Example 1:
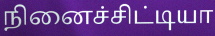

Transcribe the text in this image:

நினைச்சிட்டியா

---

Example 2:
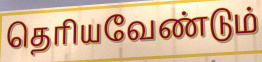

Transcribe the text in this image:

தெரியவேண்டும்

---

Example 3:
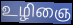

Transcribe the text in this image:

உழிஞை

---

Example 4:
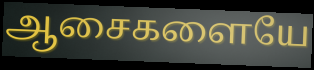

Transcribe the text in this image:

ஆசைகளையே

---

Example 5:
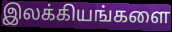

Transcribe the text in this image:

இலக்கியங்களை